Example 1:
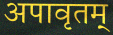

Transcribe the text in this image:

अपावृतम्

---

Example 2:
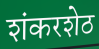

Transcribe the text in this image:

शंकरशेठ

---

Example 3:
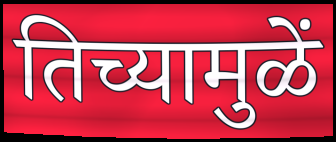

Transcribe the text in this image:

तिच्यामुळें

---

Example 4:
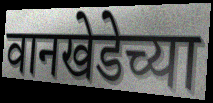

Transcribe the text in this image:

वानखेडेच्या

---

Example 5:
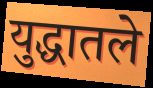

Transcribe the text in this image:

युद्धातले